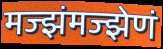
मज्झंमज्झेणं